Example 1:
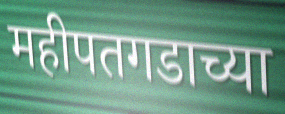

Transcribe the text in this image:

महीपतगडाच्या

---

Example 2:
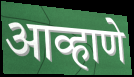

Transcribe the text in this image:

आव्हाणे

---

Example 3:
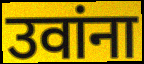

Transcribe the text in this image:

उवांना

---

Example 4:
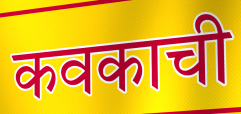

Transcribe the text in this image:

कवकाची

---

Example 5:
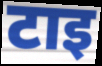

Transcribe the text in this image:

टाइ